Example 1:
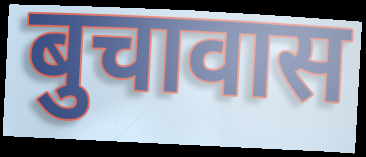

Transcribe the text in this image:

बुचावास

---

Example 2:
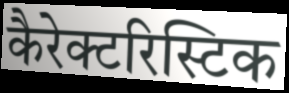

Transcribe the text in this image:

कैरेक्टरिस्टिक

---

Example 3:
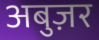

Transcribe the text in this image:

अबुज़र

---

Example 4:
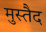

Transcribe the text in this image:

मुस्‍तैद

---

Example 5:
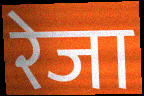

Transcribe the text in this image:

रेजा